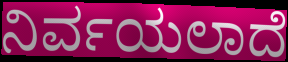
ನಿರ್ವಯಲಾದೆ